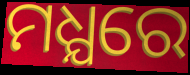
ମଧ୍ଯରେ